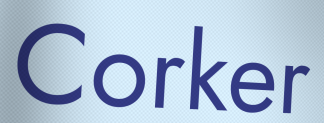
Corker